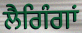
ਲੈਗਿੰਗਾਂ